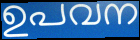
ഉപവന